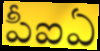
పీఐఏ